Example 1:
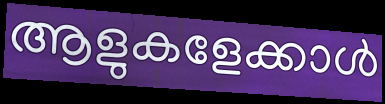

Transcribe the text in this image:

ആളുകളേക്കാൾ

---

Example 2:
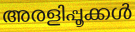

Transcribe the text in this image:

അരളിപ്പൂക്കൾ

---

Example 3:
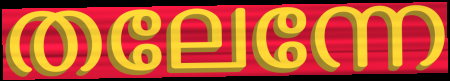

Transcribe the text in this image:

തലേന്നേ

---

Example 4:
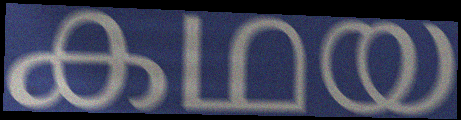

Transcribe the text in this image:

കഥയ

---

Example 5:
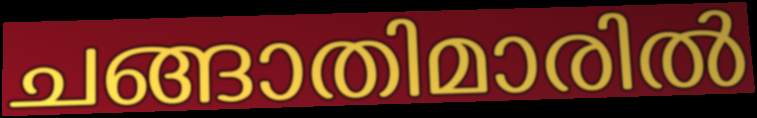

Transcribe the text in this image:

ചങ്ങാതിമാരിൽ